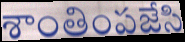
శాంతింపజేసి